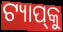
ଟ୍ୟାପ୍‌କୁ